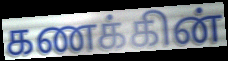
கணக்கின்